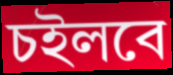
চইলবে